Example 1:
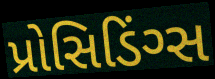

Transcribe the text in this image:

પ્રોસિડિંગ્સ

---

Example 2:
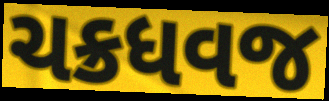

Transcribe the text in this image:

ચક્રધવજ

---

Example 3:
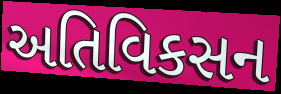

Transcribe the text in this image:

અતિવિકસન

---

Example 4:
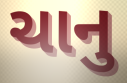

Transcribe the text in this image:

ચાનુ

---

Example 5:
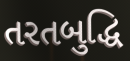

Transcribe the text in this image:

તરતબુદ્ધિ